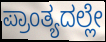
ಪ್ರಾಂತ್ಯದಲ್ಲೇ